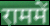
राममें